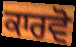
ਕਾਰਵੋ